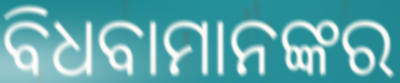
ବିଧବାମାନଙ୍କର